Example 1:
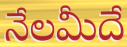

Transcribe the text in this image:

నేలమీదే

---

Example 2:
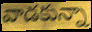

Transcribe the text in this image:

వాడకున్నా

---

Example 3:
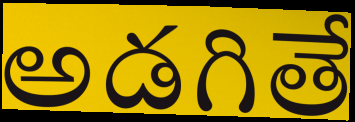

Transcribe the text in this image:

అడగితే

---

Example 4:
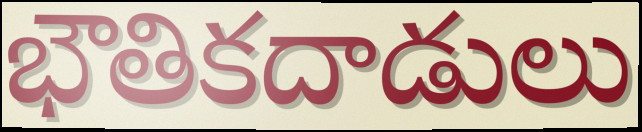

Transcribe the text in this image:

భౌతికదాడులు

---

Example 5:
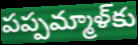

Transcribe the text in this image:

పప్పమ్మాళ్‌కు